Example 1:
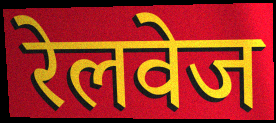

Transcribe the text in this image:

रेलवेज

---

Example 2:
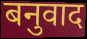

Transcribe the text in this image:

बनुवाद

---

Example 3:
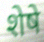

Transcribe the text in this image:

शेषे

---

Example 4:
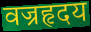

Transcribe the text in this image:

वज्रहृदय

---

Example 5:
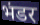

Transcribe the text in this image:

भंडर